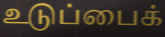
உடுப்பைக்